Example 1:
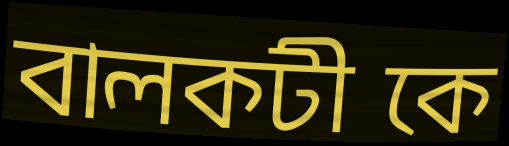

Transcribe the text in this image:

বালকটীকে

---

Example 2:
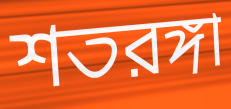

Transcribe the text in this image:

শতরঙ্গা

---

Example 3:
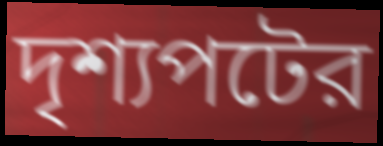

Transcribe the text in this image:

দৃশ্যপটের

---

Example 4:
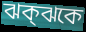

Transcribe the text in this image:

ঝক্‌ঝকে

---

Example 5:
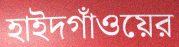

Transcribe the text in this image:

হাইদগাঁওয়ের